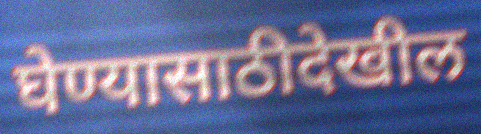
घेण्यासाठीदेखील